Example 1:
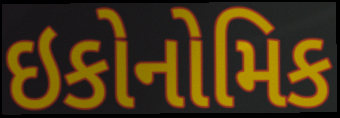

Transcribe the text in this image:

ઇકોનોમિક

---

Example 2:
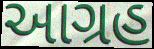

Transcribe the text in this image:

આગ્રહ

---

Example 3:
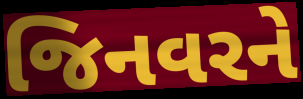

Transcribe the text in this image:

જિનવરને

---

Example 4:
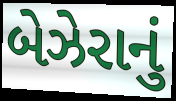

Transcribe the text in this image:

બેઝેરાનું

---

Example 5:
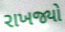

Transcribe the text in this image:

રાખજ્યો